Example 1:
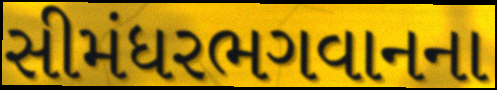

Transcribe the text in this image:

સીમંધરભગવાનના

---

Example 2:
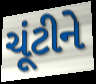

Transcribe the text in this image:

ચૂંટીને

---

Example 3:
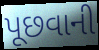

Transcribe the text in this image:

પૂછવાની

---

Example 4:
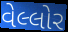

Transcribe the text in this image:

વેલ્લોર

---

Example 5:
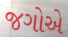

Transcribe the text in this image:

જગોએ